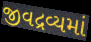
જીવદ્રવ્યમાં